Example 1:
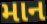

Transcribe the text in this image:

માન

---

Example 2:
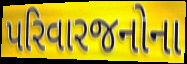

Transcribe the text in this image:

પરિવારજનોના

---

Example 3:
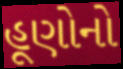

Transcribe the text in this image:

હૂણોનો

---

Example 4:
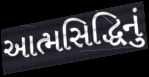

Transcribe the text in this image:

આત્મસિદ્ધિનું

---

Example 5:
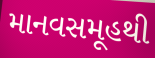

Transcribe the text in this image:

માનવસમૂહથી